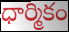
ధార్మికం